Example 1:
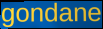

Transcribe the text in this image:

gondane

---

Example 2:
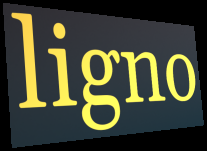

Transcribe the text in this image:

ligno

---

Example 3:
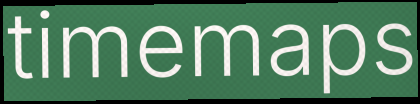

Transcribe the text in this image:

timemaps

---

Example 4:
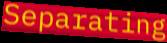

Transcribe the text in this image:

Separating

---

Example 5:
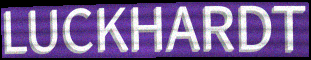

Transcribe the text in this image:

LUCKHARDT